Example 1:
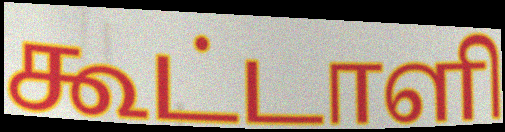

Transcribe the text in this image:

கூட்டாளி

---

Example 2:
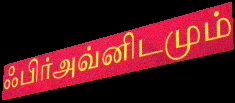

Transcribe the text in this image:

ஃபிர்அவ்னிடமும்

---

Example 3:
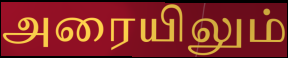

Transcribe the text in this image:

அரையிலும்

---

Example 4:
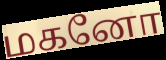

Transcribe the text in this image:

மகனோ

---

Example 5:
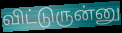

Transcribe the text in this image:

விட்டுருன்னு